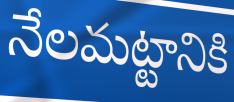
నేలమట్టానికి